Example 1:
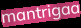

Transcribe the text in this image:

mantrigaa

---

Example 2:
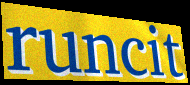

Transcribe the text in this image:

runcit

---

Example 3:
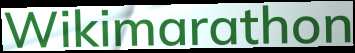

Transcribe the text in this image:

Wikimarathon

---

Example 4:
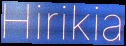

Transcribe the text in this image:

Hirikia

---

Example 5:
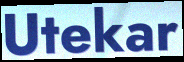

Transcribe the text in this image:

Utekar